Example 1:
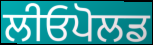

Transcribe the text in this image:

ਲੀਓਪੋਲਡ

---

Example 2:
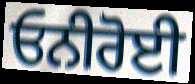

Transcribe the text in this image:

ਓਨੀਰੋਈ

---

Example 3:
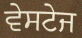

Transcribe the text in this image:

ਵੇਸਟੇਜ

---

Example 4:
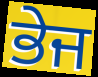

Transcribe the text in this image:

ਭੇਜ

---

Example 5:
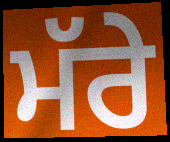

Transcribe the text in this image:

ਮੱਰੇ